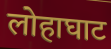
लोहाघाट